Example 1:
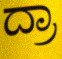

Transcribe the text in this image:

ದ್ರಾ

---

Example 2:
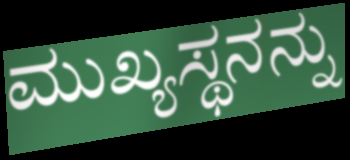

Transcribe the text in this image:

ಮುಖ್ಯಸ್ಥನನ್ನು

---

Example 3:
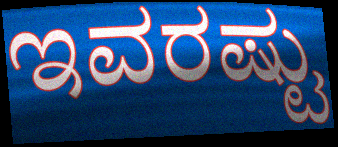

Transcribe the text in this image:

ಇವರಷ್ಟು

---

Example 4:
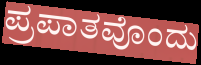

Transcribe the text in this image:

ಪ್ರಪಾತವೊಂದು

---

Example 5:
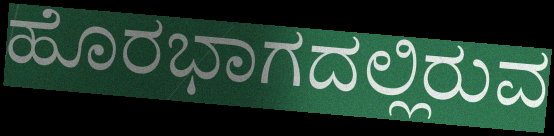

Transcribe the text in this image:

ಹೊರಭಾಗದಲ್ಲಿರುವ